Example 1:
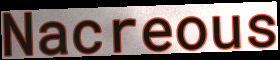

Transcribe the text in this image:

Nacreous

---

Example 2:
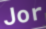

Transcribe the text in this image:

Jor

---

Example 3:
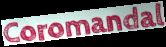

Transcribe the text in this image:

Coromandal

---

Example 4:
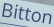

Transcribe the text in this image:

Bitton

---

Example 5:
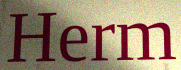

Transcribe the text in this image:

Herm